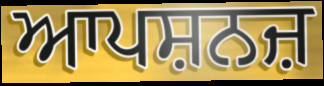
ਆਪਸ਼ਨਜ਼